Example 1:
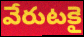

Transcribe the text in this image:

వేరుటకై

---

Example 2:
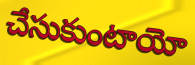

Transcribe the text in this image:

చేసుకుంటాయో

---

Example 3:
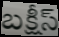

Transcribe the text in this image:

బక్షీస్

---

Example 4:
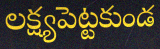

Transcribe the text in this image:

లక్ష్యపెట్టకుండ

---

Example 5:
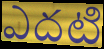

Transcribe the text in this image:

ఎదటి